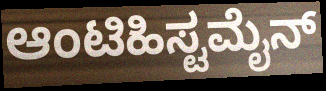
ಆಂಟಿಹಿಸ್ಟಮೈನ್